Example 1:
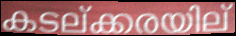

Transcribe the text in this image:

കടല്ക്കരയില്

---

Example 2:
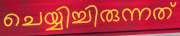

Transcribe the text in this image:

ചെയ്യിച്ചിരുന്നത്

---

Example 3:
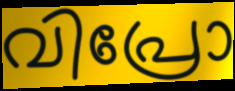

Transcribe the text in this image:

വിപ്രോ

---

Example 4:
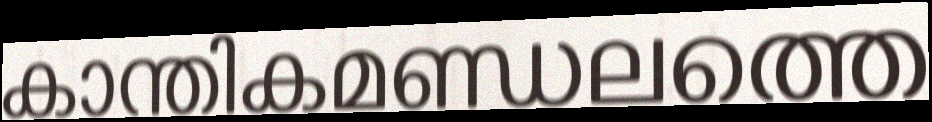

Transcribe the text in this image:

കാന്തികമണ്ഡലത്തെ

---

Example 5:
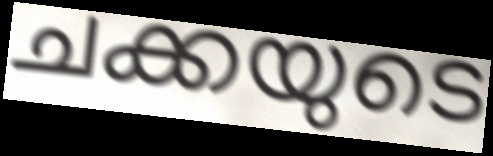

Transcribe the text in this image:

ചക്കയുടെ